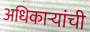
अधिकार्‍यांची